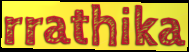
rrathika